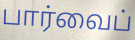
பார்வைப்